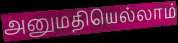
அனுமதியெல்லாம்